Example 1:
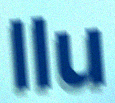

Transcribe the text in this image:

llu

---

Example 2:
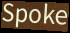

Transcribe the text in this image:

Spoke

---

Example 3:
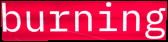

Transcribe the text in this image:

burning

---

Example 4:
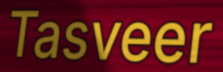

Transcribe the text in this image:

Tasveer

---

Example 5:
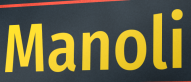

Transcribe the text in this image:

Manoli